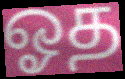
ஓத